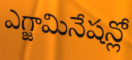
ఎగ్జామినేషన్లో